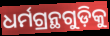
ଧର୍ମଗ୍ରନ୍ଥଗୁଡ଼ିକୁ